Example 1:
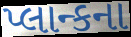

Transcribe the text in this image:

પ્લાન્કના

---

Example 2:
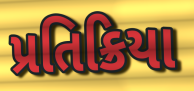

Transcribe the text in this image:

પ્રતિક્રિયા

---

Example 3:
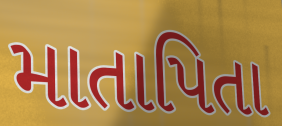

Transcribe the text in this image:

માતાપિતા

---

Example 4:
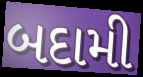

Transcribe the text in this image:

બદામી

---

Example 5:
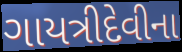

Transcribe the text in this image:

ગાયત્રીદેવીના